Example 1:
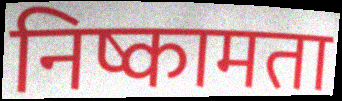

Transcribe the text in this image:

निष्कामता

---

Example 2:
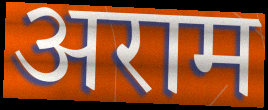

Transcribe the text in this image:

अराम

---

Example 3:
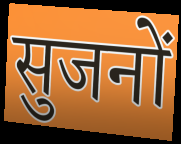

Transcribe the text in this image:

सुजनों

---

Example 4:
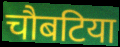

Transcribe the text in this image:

चौबटिया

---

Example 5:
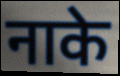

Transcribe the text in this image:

नाके